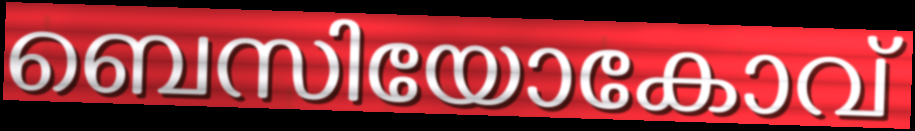
ബെസിയോകോവ്